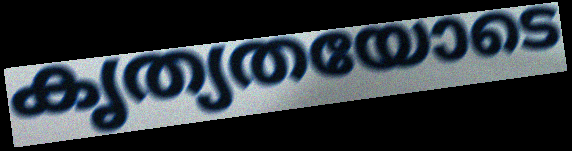
കൃത്യതയോടെ